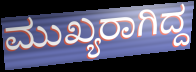
ಮುಖ್ಯರಾಗಿದ್ದ